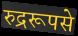
रुद्ररूपसे